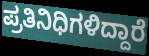
ಪ್ರತಿನಿಧಿಗಳಿದ್ದಾರೆ